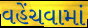
વહેંચવામાં